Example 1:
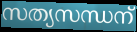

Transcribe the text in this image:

സത്യസന്ധന്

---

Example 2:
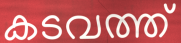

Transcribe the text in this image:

കടവത്ത്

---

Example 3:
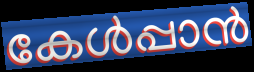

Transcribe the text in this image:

കേൾപ്പാൻ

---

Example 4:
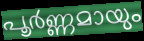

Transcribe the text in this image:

പൂർണ്ണമായും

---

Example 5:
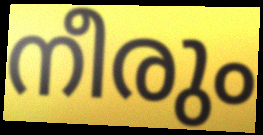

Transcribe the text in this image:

നീരും